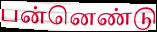
பன்னெண்டு